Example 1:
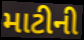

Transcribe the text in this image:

માટીની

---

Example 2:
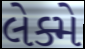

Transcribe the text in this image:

લેક્મે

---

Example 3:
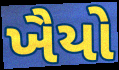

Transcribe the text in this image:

ખૈયો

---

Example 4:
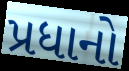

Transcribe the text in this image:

પ્રધાનો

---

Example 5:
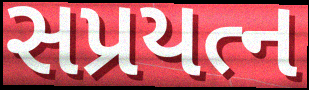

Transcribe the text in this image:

સપ્રયત્ન